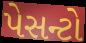
પેસન્ટો